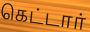
கெட்டார்